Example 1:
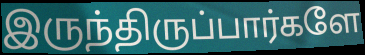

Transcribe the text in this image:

இருந்திருப்பார்களே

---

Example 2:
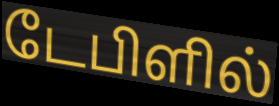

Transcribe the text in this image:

டேபிளில்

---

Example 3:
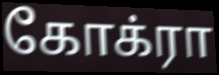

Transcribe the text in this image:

கோக்ரா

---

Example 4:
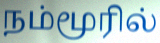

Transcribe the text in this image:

நம்மூரில்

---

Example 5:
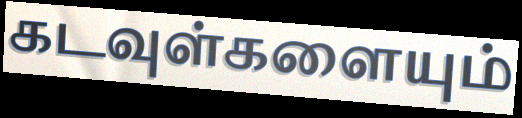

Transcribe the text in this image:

கடவுள்களையும்